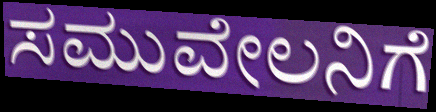
ಸಮುವೇಲನಿಗೆ